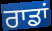
ਰਾਡਾਂ